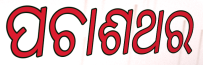
ପଚାଶଥର